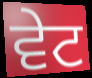
ਵੇਟ